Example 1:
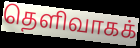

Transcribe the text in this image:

தெளிவாகக்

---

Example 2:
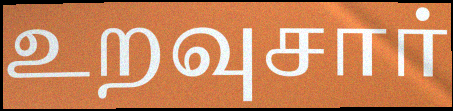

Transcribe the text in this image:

உறவுசார்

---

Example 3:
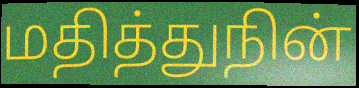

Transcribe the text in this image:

மதித்துநின்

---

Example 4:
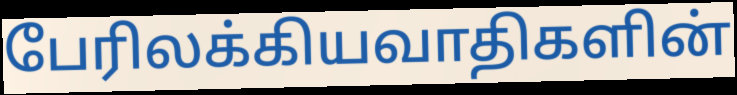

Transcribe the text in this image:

பேரிலக்கியவாதிகளின்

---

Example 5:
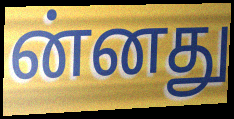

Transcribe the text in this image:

ன்னது